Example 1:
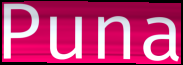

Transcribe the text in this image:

Puna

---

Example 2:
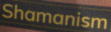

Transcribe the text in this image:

Shamanism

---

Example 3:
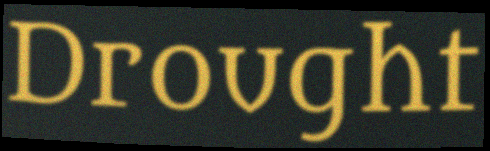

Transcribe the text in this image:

Drought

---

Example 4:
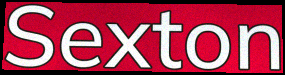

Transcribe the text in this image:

Sexton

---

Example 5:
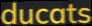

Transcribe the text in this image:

ducats